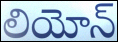
లియోన్